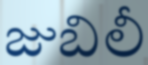
జుబిలీ